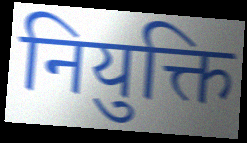
नियुक्ति